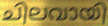
ചിലവായി